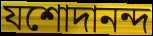
যশোদানন্দ